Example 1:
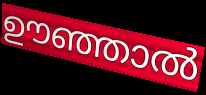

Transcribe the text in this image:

ഊഞ്ഞാൽ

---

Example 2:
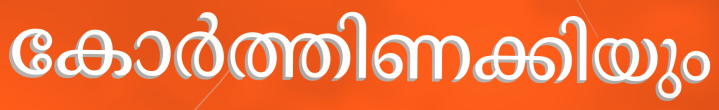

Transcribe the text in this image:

കോർത്തിണക്കിയും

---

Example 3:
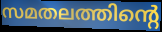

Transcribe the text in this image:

സമതലത്തിന്റെ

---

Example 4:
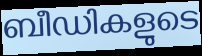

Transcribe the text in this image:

ബീഡികളുടെ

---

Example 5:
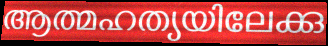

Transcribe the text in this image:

ആത്മഹത്യയിലേക്കു